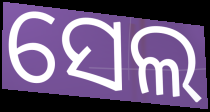
ସେଲ